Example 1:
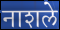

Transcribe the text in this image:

नाशले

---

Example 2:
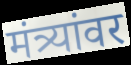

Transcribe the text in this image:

मंत्र्यांवर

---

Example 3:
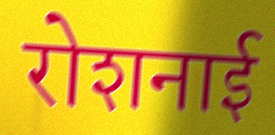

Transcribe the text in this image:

रोशनाई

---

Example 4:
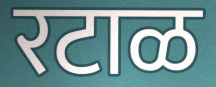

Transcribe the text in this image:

रटाळ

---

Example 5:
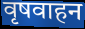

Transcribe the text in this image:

वृषवाहन